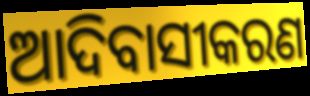
ଆଦିବାସୀକରଣ